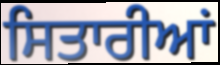
ਸਿਤਾਰੀਆਂ